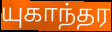
யுகாந்தர